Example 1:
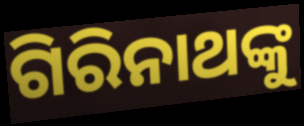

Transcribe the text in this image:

ଗିରିନାଥଙ୍କୁ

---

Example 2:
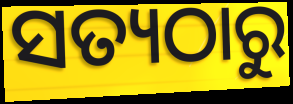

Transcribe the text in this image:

ସତ୍ୟଠାରୁ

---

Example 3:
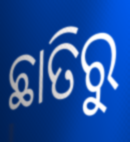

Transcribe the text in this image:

ଛାତିରୁ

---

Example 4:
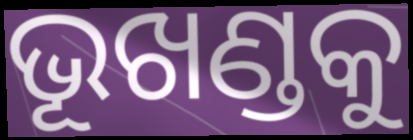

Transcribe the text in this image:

ଭୂଖଣ୍ଡକୁ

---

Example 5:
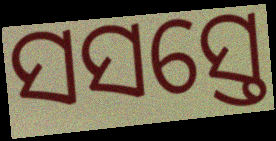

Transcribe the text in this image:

ସସସ୍ତେ